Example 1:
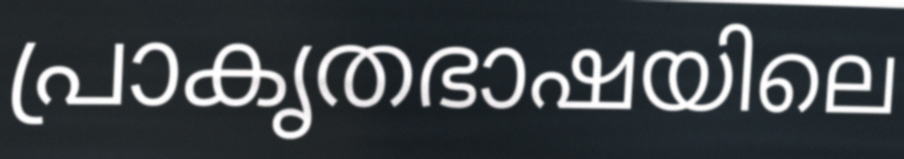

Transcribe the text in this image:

പ്രാകൃതഭാഷയിലെ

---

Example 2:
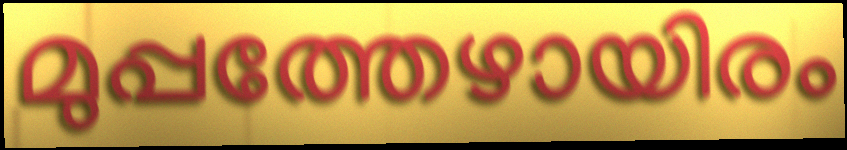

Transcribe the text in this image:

മുപ്പത്തേഴായിരം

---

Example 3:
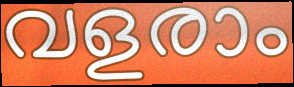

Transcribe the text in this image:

വളരാം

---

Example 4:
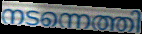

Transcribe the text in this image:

നടന്നെത്തി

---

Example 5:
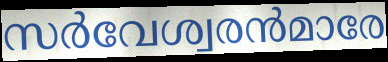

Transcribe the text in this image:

സർവേശ്വരൻമാരേ